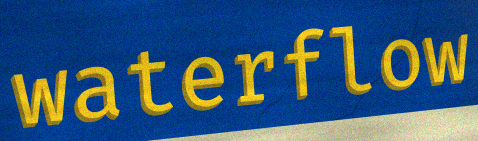
waterflow